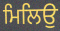
ਮਿਲਿਉ